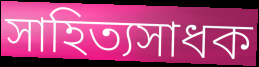
সাহিত্যসাধক